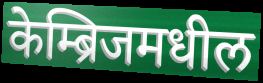
केम्ब्रिजमधील